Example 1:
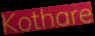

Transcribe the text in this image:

Kothare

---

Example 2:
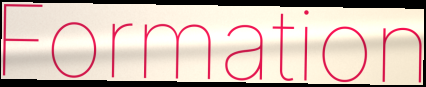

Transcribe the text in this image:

Formation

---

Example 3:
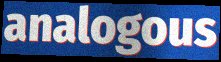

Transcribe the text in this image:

analogous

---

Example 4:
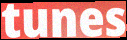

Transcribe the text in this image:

tunes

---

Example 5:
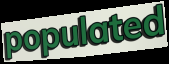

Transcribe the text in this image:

populated